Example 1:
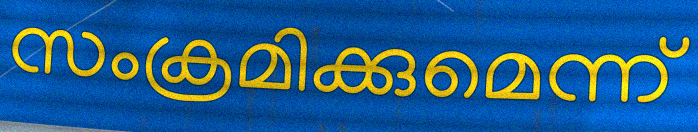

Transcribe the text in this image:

സംക്രമിക്കുമെന്ന്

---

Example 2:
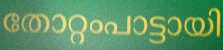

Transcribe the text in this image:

തോറ്റംപാട്ടായി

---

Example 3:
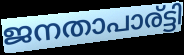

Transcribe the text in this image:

ജനതാപാര്ട്ടി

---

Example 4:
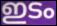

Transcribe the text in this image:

ഇടം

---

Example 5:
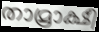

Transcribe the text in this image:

താമ്രാക്ഷീ